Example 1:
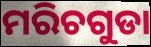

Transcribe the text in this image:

ମରିଚଗୁଡା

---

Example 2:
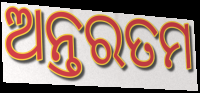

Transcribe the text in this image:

ଅନ୍ତରତମ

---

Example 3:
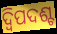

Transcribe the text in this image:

ଦ୍ବିପଦଶ୍ଚ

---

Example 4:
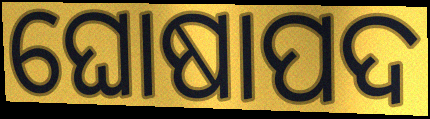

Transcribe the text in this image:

ଘୋଷାପଦ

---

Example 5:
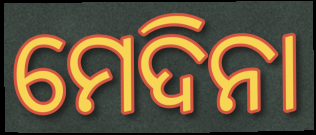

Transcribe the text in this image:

ମେଦିନା